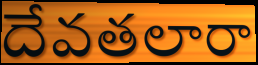
దేవతలారా